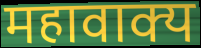
महावाक्य